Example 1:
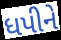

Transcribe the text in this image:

ધપીને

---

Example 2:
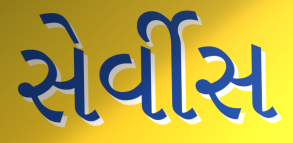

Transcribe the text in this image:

સેર્વીસ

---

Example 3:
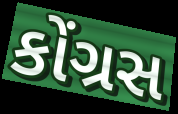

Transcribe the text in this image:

કોંગ્રસ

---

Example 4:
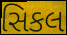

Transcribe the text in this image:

સિકલ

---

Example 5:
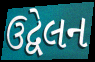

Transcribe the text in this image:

ઉદ્વેલન